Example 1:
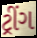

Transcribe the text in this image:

ટ્રીંગ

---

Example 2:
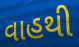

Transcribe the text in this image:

વાહથી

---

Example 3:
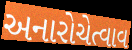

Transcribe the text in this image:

અનારોચેત્વાવ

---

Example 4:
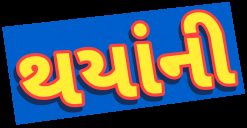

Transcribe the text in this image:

થયાંની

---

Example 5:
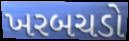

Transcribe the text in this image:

ખરબચડો